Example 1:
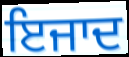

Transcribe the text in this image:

ਇਜਾਦ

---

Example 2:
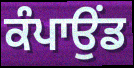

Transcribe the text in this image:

ਕੰਪਾਉਂਡ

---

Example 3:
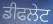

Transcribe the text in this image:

ਡੀਫਲੇਟ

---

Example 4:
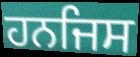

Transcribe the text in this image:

ਹਨਜਿਸ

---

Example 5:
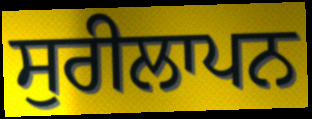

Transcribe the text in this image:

ਸੁਰੀਲਾਪਨ